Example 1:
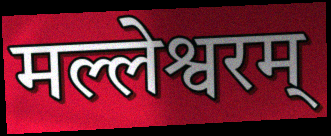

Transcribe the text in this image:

मल्लेश्वरम्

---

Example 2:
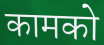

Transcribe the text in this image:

कामको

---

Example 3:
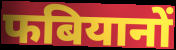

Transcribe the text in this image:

फबियानों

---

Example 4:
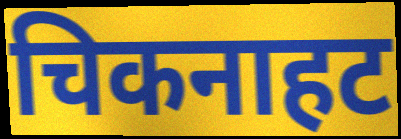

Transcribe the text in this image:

चिकनाहट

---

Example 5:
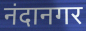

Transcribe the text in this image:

नंदानगर